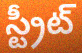
స్ట్రీట్